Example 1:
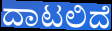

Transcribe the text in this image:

ದಾಟಲಿದೆ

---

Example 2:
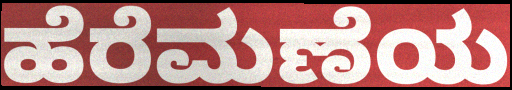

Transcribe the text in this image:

ಹೆರೆಮಣೆಯ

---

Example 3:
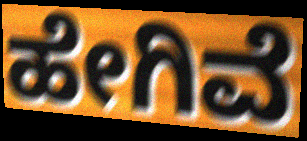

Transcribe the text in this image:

ಹೇಗಿವೆ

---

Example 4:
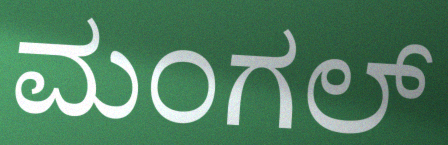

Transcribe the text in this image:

ಮಂಗಲ್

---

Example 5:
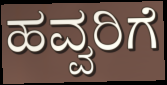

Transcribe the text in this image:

ಹವ್ವರಿಗೆ